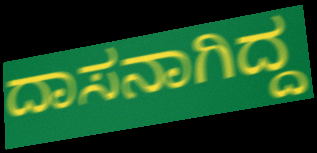
ದಾಸನಾಗಿದ್ದ